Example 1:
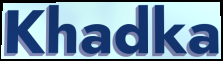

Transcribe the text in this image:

Khadka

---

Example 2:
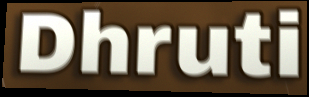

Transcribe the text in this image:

Dhruti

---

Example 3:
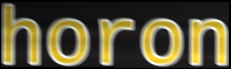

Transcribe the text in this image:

horon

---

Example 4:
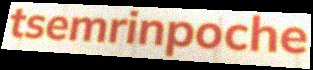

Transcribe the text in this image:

tsemrinpoche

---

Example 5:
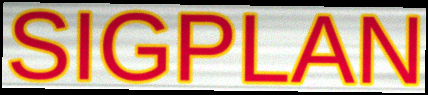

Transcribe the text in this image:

SIGPLAN